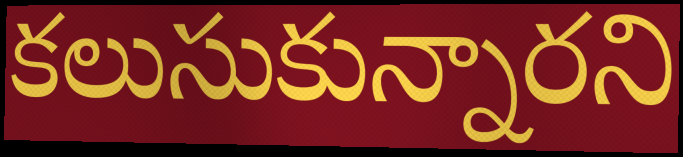
కలుసుకున్నారని